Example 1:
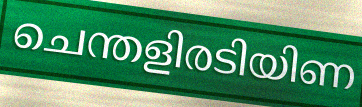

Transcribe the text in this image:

ചെന്തളിരടിയിണ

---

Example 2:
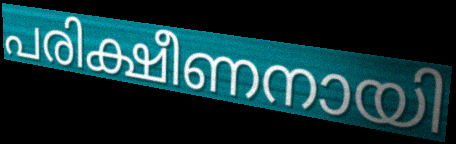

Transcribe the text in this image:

പരിക്ഷീണനായി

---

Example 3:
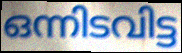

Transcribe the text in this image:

ഒന്നിടവിട്ട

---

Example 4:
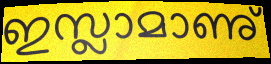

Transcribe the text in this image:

ഇസ്ലാമാണു്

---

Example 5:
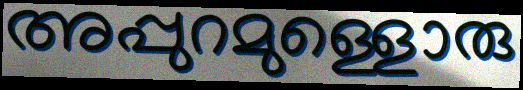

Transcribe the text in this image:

അപ്പുറമുള്ളൊരു